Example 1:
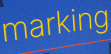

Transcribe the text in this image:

marking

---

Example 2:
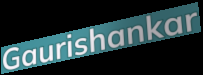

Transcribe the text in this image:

Gaurishankar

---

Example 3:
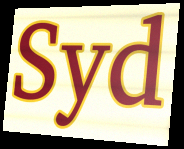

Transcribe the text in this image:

Syd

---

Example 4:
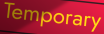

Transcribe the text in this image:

Temporary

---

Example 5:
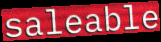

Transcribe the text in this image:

saleable